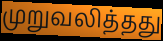
முறுவலித்தது